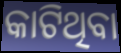
କାଟିଥିବା